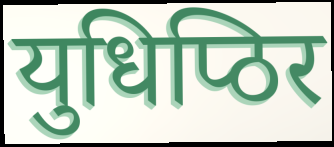
युधिप्ठिर